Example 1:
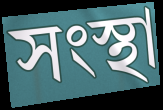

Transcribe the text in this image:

সংস্থা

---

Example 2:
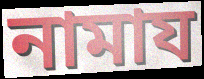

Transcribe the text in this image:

নামায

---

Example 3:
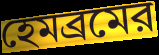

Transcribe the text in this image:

হেমব্রমের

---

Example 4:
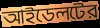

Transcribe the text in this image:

আইডেলটের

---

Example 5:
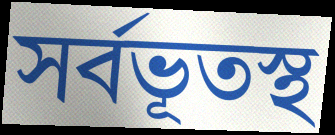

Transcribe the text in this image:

সর্বভূতস্থ